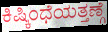
ಕಿಷ್ಕಿಂಧೆಯತ್ತಣ್ಗೆ